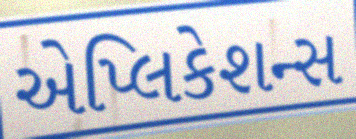
એપ્લિકેશન્સ